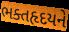
ભક્તહૃદયને